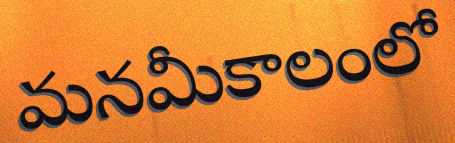
మనమీకాలంలో